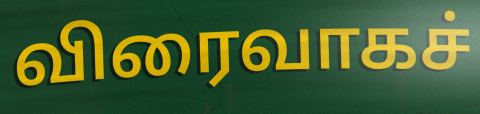
விரைவாகச்